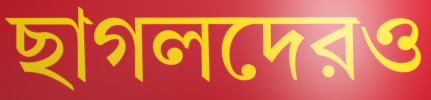
ছাগলদেরও